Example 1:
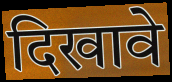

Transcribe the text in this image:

दिखावे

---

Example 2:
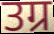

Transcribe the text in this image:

उग्र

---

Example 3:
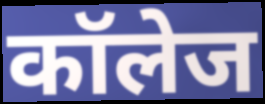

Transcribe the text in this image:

कॉलेज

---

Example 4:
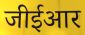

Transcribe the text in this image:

जीईआर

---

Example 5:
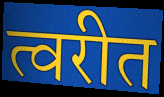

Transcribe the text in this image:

त्वरीत